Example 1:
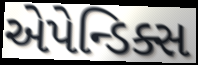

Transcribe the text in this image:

એપેન્ડિક્સ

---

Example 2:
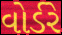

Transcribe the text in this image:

વોર્ડરે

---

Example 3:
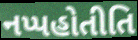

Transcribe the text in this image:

નપ્પહોતીતિ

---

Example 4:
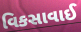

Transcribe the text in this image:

વિકસાવાઈ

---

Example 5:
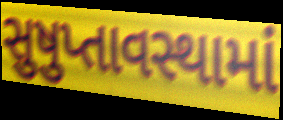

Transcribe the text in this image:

સુષુપ્તાવસ્થામાં